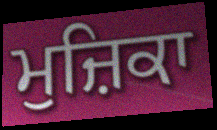
ਮੁਜ਼ਿਕਾ